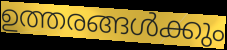
ഉത്തരങ്ങൾക്കും